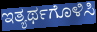
ಇತ್ಯರ್ಥಗೊಳಿಸಿ